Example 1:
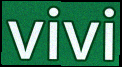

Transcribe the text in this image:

vivi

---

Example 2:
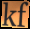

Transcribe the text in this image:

kf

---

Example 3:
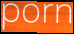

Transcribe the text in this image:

porn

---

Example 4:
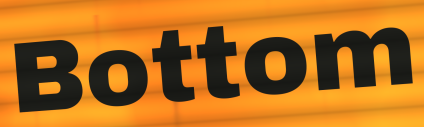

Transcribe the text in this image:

Bottom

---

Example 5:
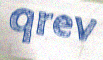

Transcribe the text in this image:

qrev